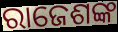
ରାଜେଶଙ୍କ